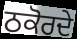
ਠਕੋਰਦੇ